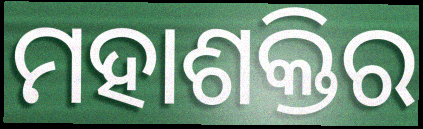
ମହାଶକ୍ତିର